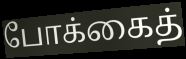
போக்கைத்